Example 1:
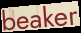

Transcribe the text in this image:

beaker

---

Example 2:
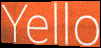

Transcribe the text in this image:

Yello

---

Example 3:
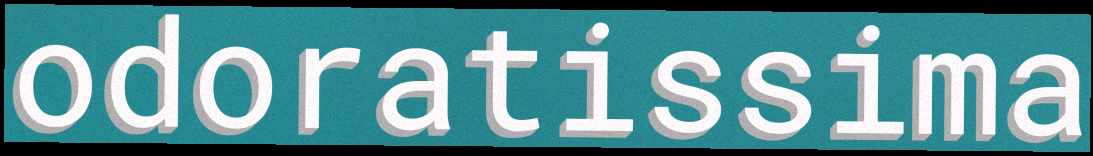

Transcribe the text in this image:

odoratissima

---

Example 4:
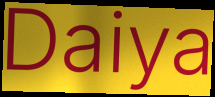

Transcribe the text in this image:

Daiya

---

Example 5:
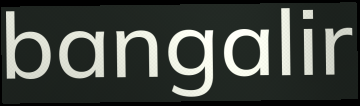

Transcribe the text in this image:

bangalir